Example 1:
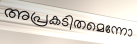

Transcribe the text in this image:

അപ്രകടിതമെന്നോ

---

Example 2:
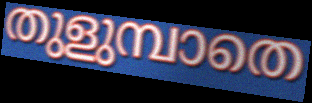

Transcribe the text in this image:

തുളുമ്പാതെ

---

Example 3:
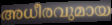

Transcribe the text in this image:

അധീരവുമായ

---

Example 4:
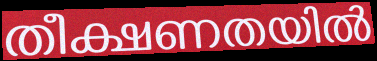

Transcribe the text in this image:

തീക്ഷണതയിൽ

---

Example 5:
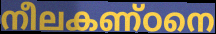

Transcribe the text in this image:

നീലകണ്ഠനെ